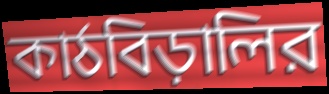
কাঠবিড়ালির